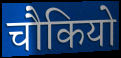
चौकियो